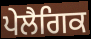
ਪੇਲੈਗਿਕ